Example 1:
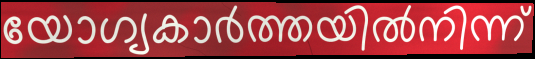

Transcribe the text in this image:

യോഗ്യകാർത്തയിൽനിന്ന്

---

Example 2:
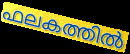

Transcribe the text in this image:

ഫലകത്തിൽ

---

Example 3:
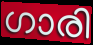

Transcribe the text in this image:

ഗാരി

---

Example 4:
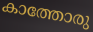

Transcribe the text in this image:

കാത്തോരു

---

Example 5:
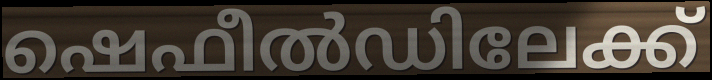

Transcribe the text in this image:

ഷെഫീൽഡിലേക്ക്